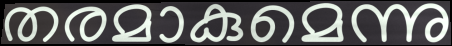
തരമാകുമെന്നു